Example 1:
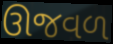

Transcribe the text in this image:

ઊજવળ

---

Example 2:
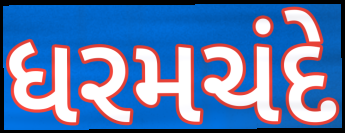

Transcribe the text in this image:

ધરમચંદે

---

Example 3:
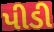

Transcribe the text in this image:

પીડી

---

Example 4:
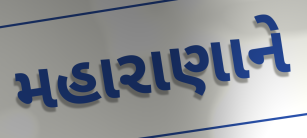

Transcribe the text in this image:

મહારાણાને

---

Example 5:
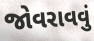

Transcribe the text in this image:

જોવરાવવું